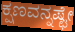
ಕ್ಷಣವನ್ನಷ್ಟೇ